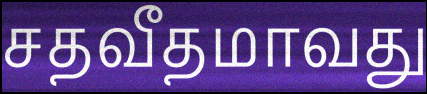
சதவீதமாவது